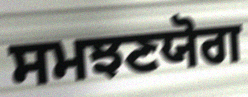
ਸਮਝਣਯੋਗ